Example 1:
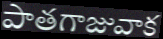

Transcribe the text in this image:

పాతగాజువాక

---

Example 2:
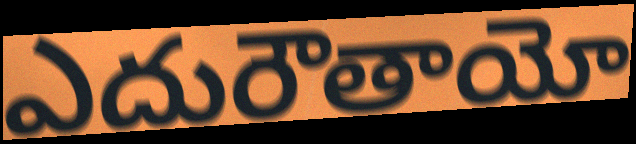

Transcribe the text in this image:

ఎదురౌతాయో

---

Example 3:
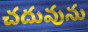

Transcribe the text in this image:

చదువును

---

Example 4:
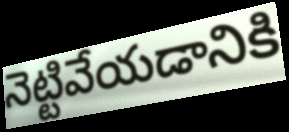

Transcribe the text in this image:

నెట్టివేయడానికి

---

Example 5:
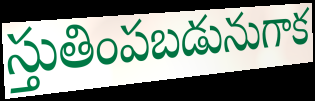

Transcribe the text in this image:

స్తుతింపబడునుగాక